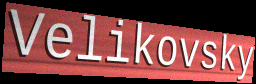
Velikovsky